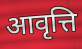
आवृत्ति